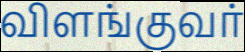
விளங்குவர்